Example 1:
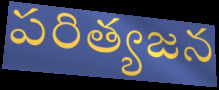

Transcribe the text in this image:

పరిత్యజన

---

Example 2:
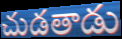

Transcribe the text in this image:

చుడతాడు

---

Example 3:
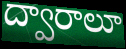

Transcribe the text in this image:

ద్వారాలూ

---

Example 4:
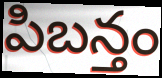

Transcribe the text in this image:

పిబన్తం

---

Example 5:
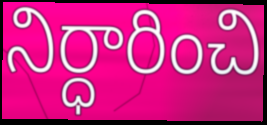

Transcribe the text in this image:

నిర్ధారించి